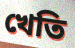
খেতি